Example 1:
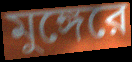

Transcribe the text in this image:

মুঙ্গেরে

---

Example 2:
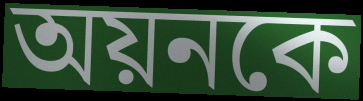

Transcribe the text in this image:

অয়নকে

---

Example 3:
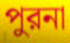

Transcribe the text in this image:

পুরনা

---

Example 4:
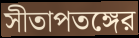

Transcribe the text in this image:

সীতাপতঙ্গের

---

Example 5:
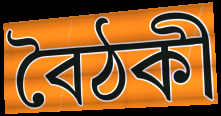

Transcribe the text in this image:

বৈঠকী